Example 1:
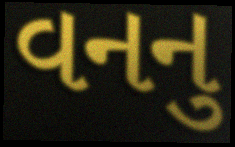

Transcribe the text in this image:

વનનુ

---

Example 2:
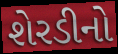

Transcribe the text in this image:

શેરડીનો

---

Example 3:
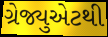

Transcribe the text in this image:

ગ્રેજ્યુએટથી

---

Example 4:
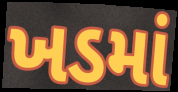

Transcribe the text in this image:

ખડમાં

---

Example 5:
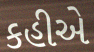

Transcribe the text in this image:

કહીએ